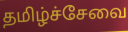
தமிழ்ச்சேவை